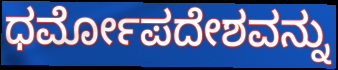
ಧರ್ಮೋಪದೇಶವನ್ನು